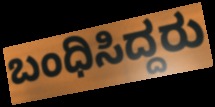
ಬಂಧಿಸಿದ್ದರು